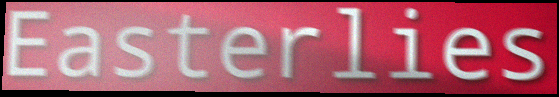
Easterlies